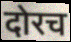
दोरच